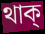
থাক্